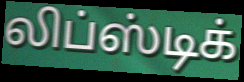
லிப்ஸ்டிக்